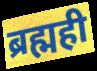
ब्रह्मही